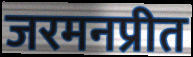
जरमनप्रीत